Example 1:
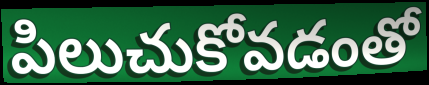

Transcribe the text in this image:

పిలుచుకోవడంతో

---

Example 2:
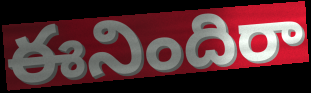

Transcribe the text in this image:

ఈనిందిరా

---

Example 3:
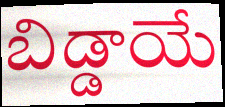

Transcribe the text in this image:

బిడ్డాయే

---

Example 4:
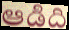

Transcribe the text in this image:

ఆడిది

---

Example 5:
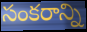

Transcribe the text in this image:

సంకరాన్ని